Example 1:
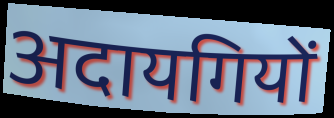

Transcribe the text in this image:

अदायगियों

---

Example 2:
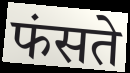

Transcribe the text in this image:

फंसते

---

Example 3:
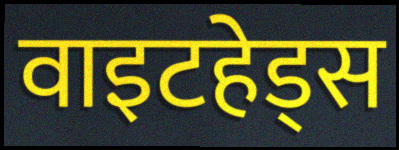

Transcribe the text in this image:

वाइटहेड्स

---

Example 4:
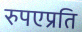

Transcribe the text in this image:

रुपएप्रति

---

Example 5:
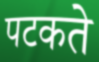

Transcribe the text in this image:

पटकते